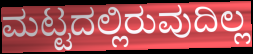
ಮಟ್ಟದಲ್ಲಿರುವುದಿಲ್ಲ